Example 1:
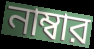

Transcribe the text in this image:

নাম্বার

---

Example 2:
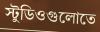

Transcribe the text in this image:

স্টুডিওগুলোতে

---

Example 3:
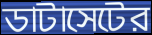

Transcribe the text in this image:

ডাটাসেটের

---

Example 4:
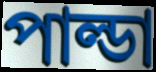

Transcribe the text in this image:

পাল্ডা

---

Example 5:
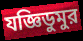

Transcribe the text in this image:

যজ্ঞিডুমুর